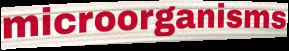
microorganisms